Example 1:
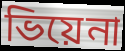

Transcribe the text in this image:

ভিয়েনা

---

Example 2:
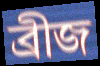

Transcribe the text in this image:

ব্ৰীজ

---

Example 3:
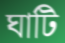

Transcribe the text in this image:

ঘাটি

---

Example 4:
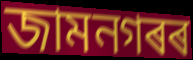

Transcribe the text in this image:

জামনগৰৰ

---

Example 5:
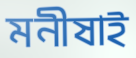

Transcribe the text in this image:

মনীষাই